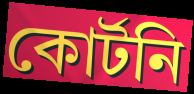
কোর্টনি